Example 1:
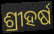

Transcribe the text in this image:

ଶ୍ରୀହର୍ଷ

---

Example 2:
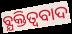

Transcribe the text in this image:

ବ୍ଯକ୍ତିତ୍ଵବାଦ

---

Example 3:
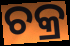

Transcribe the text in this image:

ଚକ୍ର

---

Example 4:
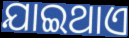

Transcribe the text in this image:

ଯାଇଥାଏ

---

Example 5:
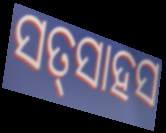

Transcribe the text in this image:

ସତ୍‍ସାହସ